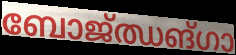
ബോജ്ഝങ്ഗാ